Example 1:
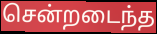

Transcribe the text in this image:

சென்றடைந்த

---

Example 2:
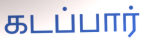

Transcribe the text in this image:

கடப்பார்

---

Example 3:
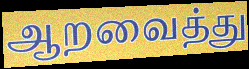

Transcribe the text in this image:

ஆறவைத்து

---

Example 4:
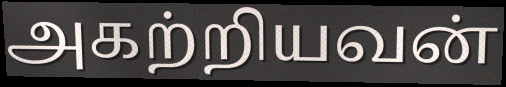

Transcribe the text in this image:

அகற்றியவன்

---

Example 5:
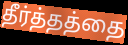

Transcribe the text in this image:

தீர்த்தத்தை